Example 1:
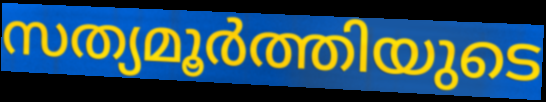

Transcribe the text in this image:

സത്യമൂർത്തിയുടെ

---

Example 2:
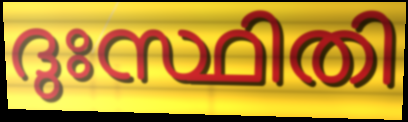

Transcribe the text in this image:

ദുഃസ്ഥിതി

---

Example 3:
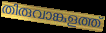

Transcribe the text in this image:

തിരുവാങ്കുളത്ത്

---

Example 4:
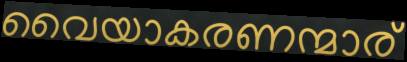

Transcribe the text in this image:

വൈയാകരണന്മാര്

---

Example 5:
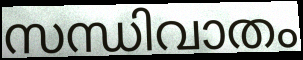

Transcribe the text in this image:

സന്ധിവാതം